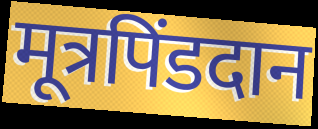
मूत्रपिंडदान